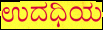
ಉದಧಿಯ